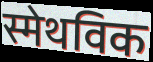
स्मेथविक